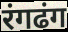
रंगढंग